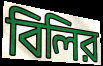
বিলির